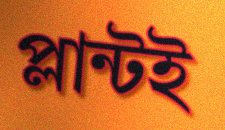
প্লান্টই